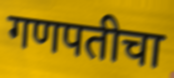
गणपतीचा